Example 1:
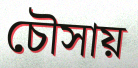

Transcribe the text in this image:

চৌসায়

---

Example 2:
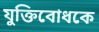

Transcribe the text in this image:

যুক্তিবোধকে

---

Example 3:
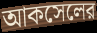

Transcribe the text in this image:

আকসেলের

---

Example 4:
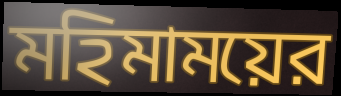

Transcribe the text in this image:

মহিমাময়ের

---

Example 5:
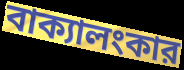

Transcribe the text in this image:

বাক্যালংকার